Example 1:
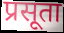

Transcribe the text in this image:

प्रसूता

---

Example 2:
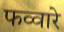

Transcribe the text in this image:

फव्वारे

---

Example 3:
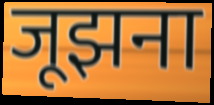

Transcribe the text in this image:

जूझना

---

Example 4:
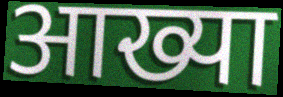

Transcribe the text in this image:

आख्या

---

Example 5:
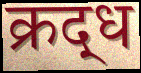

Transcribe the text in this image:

क्रद्ध